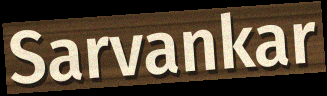
Sarvankar